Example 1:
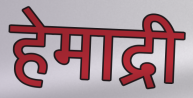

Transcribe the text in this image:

हेमाद्री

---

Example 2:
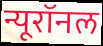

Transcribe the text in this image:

न्यूरॉनल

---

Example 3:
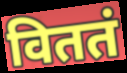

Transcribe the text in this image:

विततं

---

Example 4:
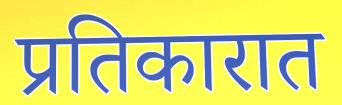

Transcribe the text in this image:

प्रतिकारात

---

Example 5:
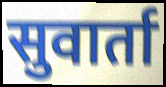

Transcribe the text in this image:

सुवार्ता